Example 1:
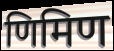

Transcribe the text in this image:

णिमिण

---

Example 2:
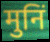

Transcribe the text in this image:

मुनिं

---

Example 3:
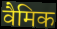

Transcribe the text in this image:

वैमिक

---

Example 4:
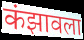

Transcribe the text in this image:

कंझावला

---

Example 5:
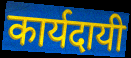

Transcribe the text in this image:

कार्यदायी